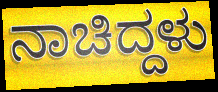
ನಾಚಿದ್ದಳು